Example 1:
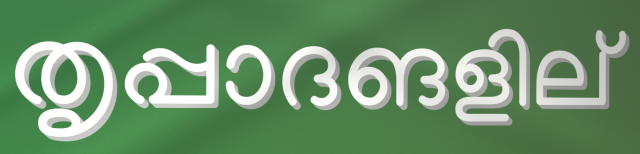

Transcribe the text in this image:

തൃപ്പാദങളില്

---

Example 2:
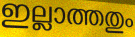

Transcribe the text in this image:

ഇല്ലാത്തതും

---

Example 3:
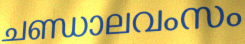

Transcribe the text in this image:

ചണ്ഡാലവംസം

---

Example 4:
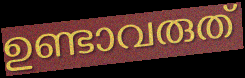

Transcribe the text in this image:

ഉണ്ടാവരുത്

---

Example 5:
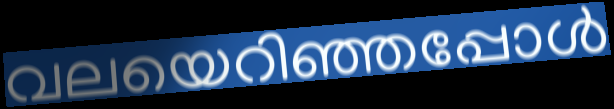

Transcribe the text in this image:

വലയെറിഞ്ഞപ്പോൾ